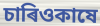
চাৰিওকাষে